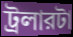
ট্রলারটা